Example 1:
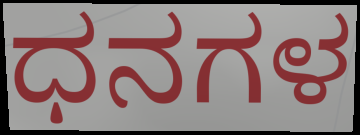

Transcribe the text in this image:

ಧನಗಳ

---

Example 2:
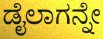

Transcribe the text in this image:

ಡೈಲಾಗನ್ನೇ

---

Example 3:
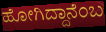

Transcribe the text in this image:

ಹೋಗಿದ್ದಾನೆಂಬ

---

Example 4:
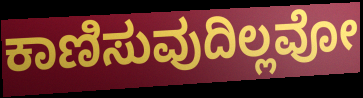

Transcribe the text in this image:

ಕಾಣಿಸುವುದಿಲ್ಲವೋ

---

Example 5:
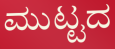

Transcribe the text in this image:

ಮುಟ್ಟದ